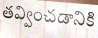
తవ్వించడానికి